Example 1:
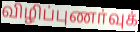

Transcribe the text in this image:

விழிப்புணர்வுக்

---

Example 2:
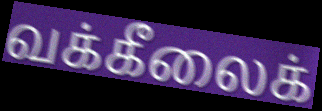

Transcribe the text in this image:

வக்கீலைக்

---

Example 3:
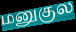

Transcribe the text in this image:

மனுகுல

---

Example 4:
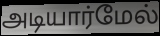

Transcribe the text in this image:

அடியார்மேல்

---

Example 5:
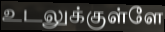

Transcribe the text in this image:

உடலுக்குள்ளே